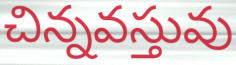
చిన్నవస్తువు